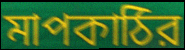
মাপকাঠির